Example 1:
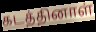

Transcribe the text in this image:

கடத்தினாள்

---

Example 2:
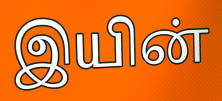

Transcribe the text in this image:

இயின்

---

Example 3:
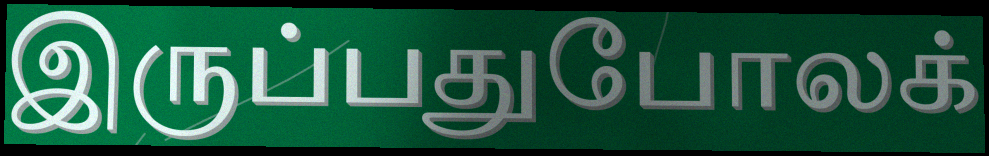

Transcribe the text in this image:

இருப்பதுபோலக்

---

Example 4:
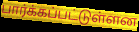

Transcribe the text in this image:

பார்க்கப்பட்டுள்ளன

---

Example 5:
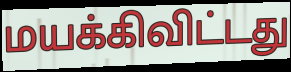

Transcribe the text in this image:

மயக்கிவிட்டது